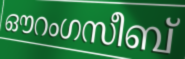
ഔറംഗസീബ്